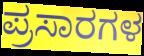
ಪ್ರಸಾರಗಳ